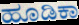
ಹೂಡಿಕಾ